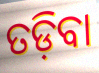
ତଡ଼ିବା